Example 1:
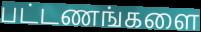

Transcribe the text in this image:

பட்டணங்களை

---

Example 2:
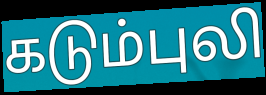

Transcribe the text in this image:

கடும்புலி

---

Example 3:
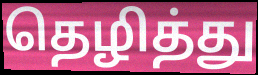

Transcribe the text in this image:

தெழித்து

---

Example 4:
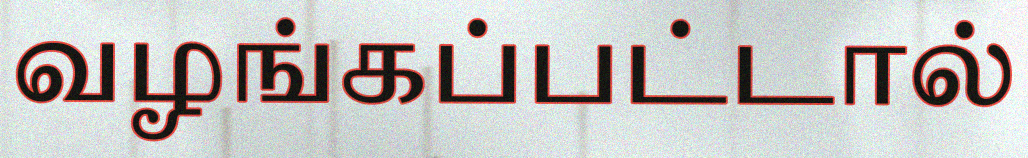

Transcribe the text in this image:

வழங்கப்பட்டால்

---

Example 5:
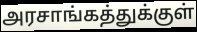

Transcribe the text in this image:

அரசாங்கத்துக்குள்